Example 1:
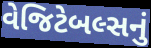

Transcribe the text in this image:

વેજિટેબલ્સનું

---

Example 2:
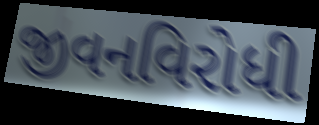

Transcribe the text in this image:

જીવનવિરોધી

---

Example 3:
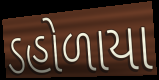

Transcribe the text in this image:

ડહોળાયા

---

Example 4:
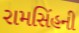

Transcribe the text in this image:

રામસિંહની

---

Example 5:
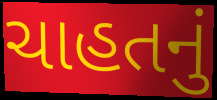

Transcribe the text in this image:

ચાહતનું